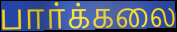
பார்க்கலை